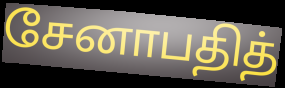
சேனாபதித்